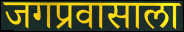
जगप्रवासाला